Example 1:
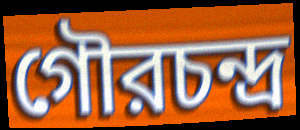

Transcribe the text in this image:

গৌরচন্দ্র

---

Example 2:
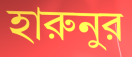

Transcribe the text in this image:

হারুনুর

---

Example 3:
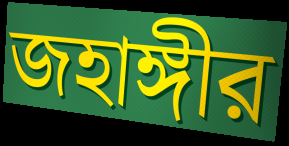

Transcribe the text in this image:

জহাঙ্গীর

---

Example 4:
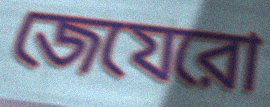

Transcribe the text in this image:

জেযেরো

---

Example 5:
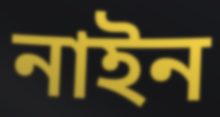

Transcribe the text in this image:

নাইন